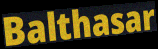
Balthasar